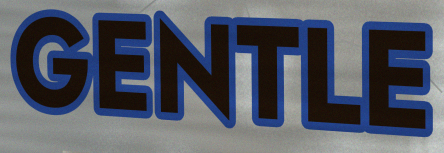
GENTLE